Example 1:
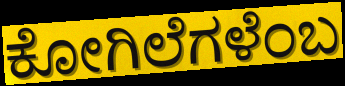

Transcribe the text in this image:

ಕೋಗಿಲೆಗಳೆಂಬ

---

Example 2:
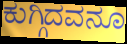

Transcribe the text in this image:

ಕುಗ್ಗಿದವನೂ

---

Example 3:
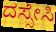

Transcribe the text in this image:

ದಸ್ಸೇಸಿ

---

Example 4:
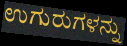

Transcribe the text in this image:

ಉಗುರುಗಳನ್ನು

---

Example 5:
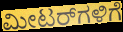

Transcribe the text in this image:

ಮೀಟರ್‌ಗಳಿಗೆ